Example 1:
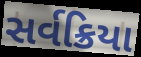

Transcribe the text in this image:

સર્વક્રિયા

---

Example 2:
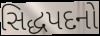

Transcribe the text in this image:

સિદ્ધપદનો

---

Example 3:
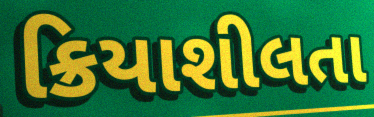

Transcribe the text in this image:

ક્રિયાશીલતા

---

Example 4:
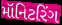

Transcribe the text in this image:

મૉનિટરિંગ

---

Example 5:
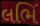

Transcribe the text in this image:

લભિં